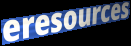
eresources